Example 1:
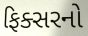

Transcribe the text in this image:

ફિક્સરનો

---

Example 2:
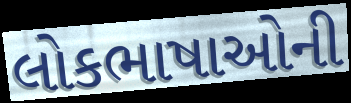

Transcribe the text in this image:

લોકભાષાઓની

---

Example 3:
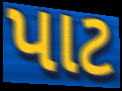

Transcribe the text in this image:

પાટ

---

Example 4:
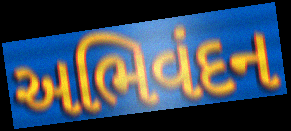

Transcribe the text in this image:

અભિવંદન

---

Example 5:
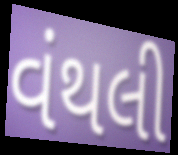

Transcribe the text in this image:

વંથલી